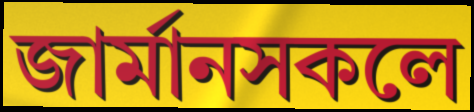
জাৰ্মানসকলে